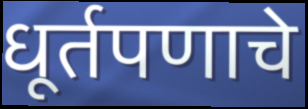
धूर्तपणाचे